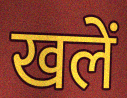
खलें